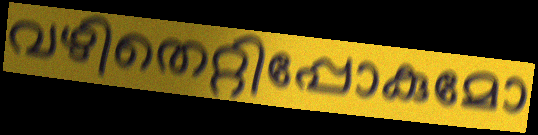
വഴിതെറ്റിപ്പോകുമോ